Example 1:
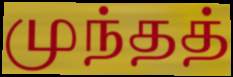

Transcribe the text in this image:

முந்தத்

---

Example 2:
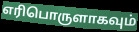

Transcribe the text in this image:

எரிபொருளாகவும்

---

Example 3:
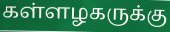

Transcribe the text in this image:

கள்ளழகருக்கு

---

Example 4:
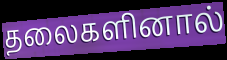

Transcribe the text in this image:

தலைகளினால்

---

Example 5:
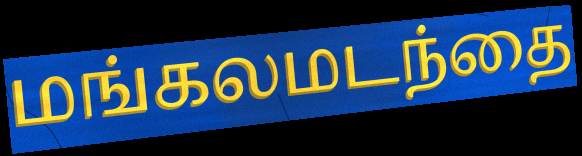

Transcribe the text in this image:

மங்கலமடந்தை